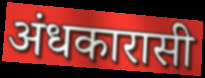
अंधकारासी